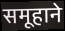
समूहाने